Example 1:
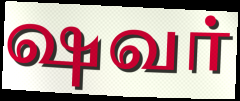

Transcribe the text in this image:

ஷவர்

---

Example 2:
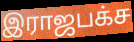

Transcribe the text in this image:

இராஜபக்ச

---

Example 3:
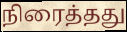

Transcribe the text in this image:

நிரைத்தது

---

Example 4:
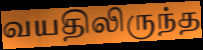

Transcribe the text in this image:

வயதிலிருந்த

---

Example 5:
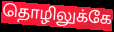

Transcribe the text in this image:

தொழிலுக்கே